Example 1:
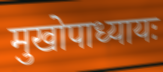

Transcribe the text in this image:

मुखोपाध्यायः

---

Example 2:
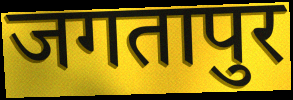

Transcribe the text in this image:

जगतापुर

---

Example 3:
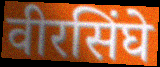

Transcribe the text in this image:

वीरसिंघे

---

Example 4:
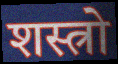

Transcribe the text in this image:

शस्त्रो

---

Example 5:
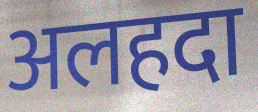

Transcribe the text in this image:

अलहदा